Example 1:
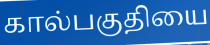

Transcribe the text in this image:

கால்பகுதியை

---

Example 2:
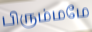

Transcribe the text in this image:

பிரும்மமே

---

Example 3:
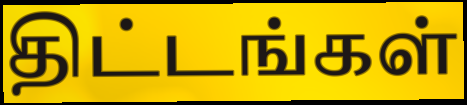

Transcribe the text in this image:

திட்டங்கள்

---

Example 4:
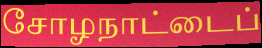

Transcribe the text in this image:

சோழநாட்டைப்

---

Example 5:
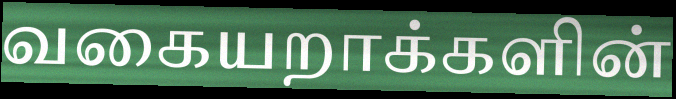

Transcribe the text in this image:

வகையறாக்களின்